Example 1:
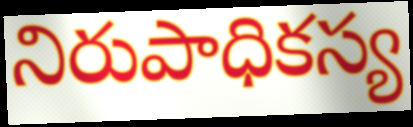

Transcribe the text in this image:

నిరుపాధికస్య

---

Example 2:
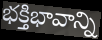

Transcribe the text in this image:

భక్తిభావాన్ని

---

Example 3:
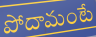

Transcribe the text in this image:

పోదామంటే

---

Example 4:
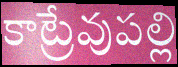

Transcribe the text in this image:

కాట్రేవుపల్లి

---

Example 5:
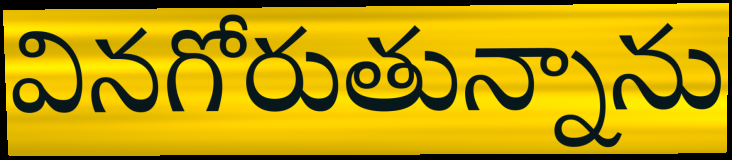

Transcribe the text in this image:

వినగోరుతున్నాను